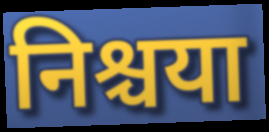
निश्चया